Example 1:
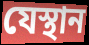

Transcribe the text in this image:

যেস্থান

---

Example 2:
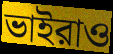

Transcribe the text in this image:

ভাইরাও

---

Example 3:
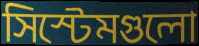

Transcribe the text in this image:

সিস্টেমগুলো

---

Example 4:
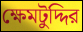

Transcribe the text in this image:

ক্ষেমটুদ্দির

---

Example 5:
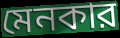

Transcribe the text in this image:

মেনকার